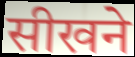
सीखने